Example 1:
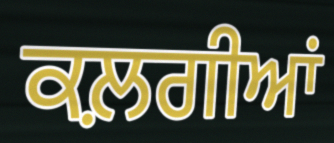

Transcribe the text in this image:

ਕਲ਼ਗੀਆਂ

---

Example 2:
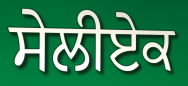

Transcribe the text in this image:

ਸੇਲੀਏਕ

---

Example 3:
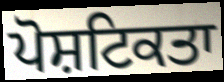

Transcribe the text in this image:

ਪੋਸ਼ਟਿਕਤਾ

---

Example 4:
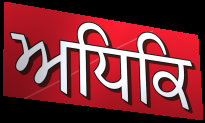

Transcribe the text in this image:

ਅਧਿਕਿ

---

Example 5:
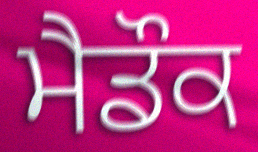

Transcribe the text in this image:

ਮੈਡੌਕ